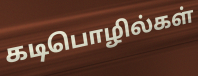
கடிபொழில்கள்